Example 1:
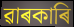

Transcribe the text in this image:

ৱাৰকাৰি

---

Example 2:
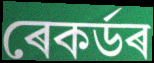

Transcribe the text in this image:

ৰেকৰ্ডৰ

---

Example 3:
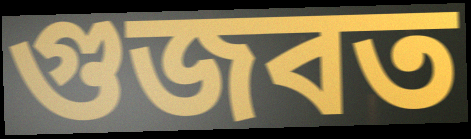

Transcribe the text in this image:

গুজবত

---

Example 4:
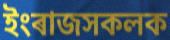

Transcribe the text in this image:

ইংৰাজসকলক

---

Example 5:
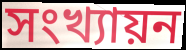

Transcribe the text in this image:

সংখ্যায়ন